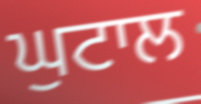
ਘੁਟਾਲ